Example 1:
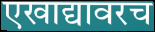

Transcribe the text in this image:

एखाद्यावरच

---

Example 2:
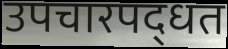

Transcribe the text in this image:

उपचारपद्धत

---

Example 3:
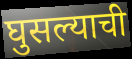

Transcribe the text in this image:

घुसल्याची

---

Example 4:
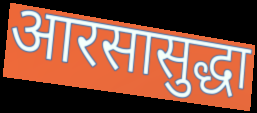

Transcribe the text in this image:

आरसासुद्धा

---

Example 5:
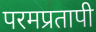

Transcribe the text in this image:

परमप्रतापी